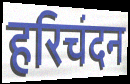
हरिचंदन